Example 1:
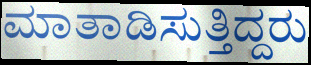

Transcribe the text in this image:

ಮಾತಾಡಿಸುತ್ತಿದ್ದರು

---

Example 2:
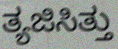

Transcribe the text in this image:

ತ್ಯಜಿಸಿತ್ತು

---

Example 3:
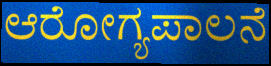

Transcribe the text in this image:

ಆರೋಗ್ಯಪಾಲನೆ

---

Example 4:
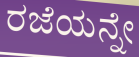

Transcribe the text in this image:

ರಜೆಯನ್ನೇ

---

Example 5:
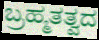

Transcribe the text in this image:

ಬ್ರಹ್ಮತತ್ವದ